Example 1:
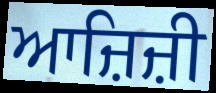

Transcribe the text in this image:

ਆਜ਼ਿਜ਼ੀ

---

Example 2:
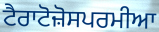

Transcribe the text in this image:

ਟੈਰਾਟੋਜ਼ੋਸਪਰਮੀਆ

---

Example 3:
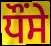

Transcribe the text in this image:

ਧੌਂਸੇ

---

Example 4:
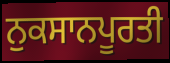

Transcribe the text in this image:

ਨੁਕਸਾਨਪੂਰਤੀ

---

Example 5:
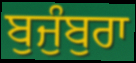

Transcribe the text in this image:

ਬੁਜੁੰਬੁਰਾ